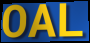
OAL